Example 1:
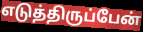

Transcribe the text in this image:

எடுத்திருப்பேன்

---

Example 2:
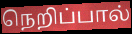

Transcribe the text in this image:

நெறிப்பால்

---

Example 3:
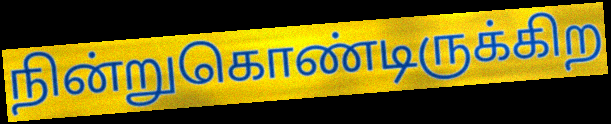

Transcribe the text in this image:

நின்றுகொண்டிருக்கிற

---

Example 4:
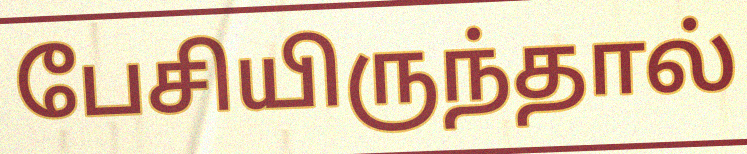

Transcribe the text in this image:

பேசியிருந்தால்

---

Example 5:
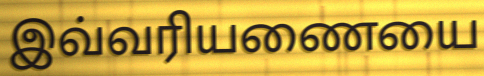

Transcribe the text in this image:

இவ்வரியணையை